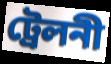
ট্রেলনী